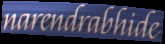
narendrabhide